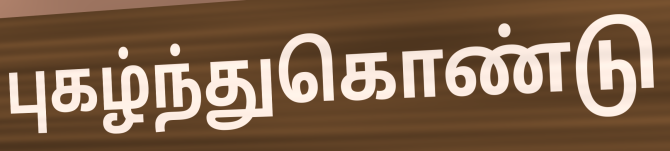
புகழ்ந்துகொண்டு